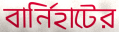
বার্নিহাটের